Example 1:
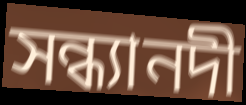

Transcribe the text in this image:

সন্ধ্যানদী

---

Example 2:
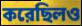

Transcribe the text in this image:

করেছিলও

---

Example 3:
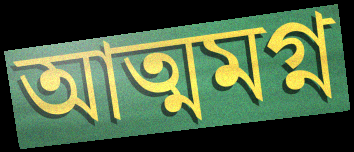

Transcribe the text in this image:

আত্মমগ্ন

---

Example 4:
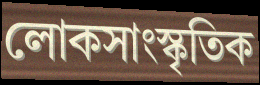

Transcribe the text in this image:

লোকসাংস্কৃতিক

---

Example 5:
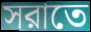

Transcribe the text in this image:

সরাতে